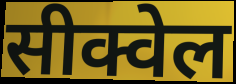
सीक्वेल